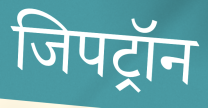
जिपट्रॉन